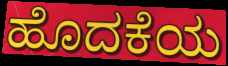
ಹೊದಕೆಯ